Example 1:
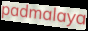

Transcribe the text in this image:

padmalaya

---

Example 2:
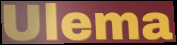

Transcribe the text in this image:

Ulema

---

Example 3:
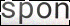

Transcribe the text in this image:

spon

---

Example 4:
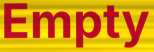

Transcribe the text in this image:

Empty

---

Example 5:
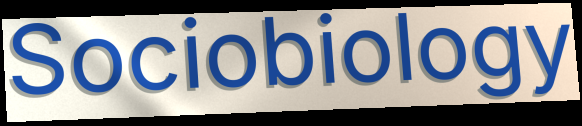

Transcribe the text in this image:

Sociobiology